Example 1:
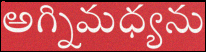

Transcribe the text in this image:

అగ్నిమధ్యను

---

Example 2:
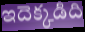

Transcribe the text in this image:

ఇదెక్కడిది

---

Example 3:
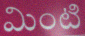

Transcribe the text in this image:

మింటి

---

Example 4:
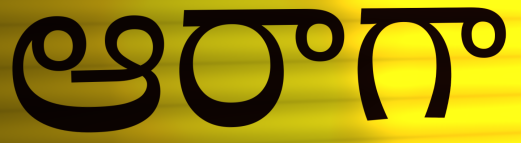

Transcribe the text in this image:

ఆరాగా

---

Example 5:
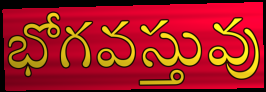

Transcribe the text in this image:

భోగవస్తువు